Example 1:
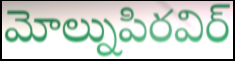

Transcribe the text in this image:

మోల్నుపిరవిర్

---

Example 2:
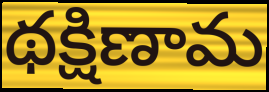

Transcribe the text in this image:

థక్షిణామ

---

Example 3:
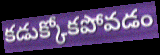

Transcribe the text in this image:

కడుక్కోకపోవడం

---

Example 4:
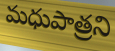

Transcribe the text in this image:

మధుపాత్రని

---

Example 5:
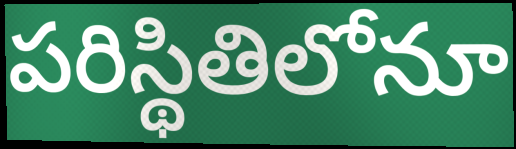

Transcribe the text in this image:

పరిస్థితిలోనూ